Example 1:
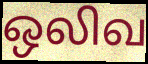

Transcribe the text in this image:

ஒலிவ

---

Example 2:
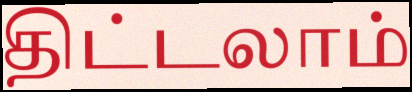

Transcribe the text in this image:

திட்டலாம்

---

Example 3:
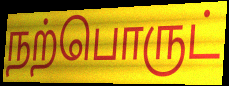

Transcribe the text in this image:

நற்பொருட்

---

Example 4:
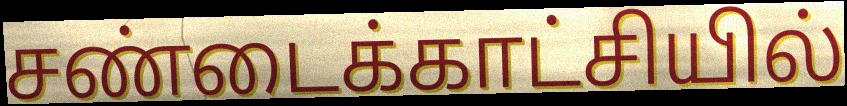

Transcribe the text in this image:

சண்டைக்காட்சியில்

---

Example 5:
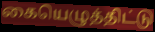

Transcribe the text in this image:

கையெழுத்திட்டு